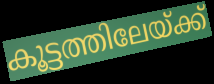
കൂട്ടത്തിലേയ്ക്ക്